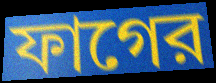
ফাগের